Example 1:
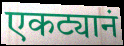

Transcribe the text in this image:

एकट्यानं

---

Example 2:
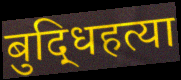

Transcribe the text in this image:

बुद्धिहत्या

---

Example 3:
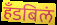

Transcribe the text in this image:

हँडबिलं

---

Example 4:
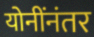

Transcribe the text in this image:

योनींनंतर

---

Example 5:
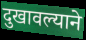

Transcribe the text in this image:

दुखावल्याने